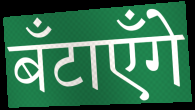
बँटाएँगे